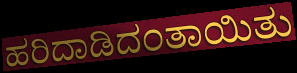
ಹರಿದಾಡಿದಂತಾಯಿತು